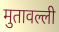
मुतावल्ली